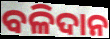
ବଳିଦାନ